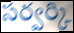
సర్వర్కి